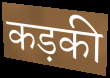
कड़की